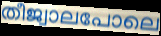
തീജ്വാലപോലെ